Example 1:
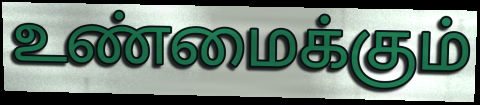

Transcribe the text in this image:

உண்மைக்கும்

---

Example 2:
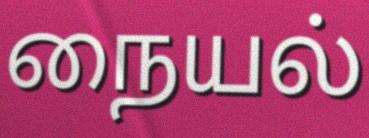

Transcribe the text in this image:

நையல்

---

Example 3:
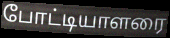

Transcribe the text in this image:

போட்டியாளரை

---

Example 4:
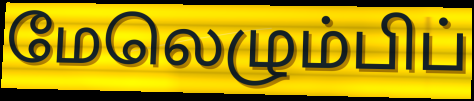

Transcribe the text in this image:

மேலெழும்பிப்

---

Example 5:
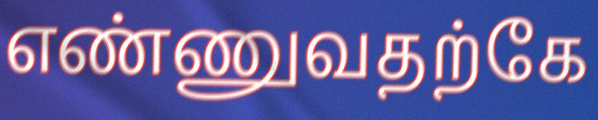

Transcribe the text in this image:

எண்ணுவதற்கே